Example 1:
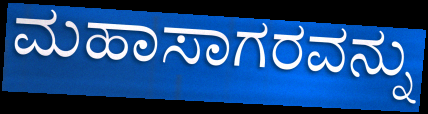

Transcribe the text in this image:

ಮಹಾಸಾಗರವನ್ನು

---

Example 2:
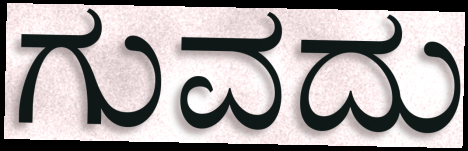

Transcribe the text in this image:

ಗುವದು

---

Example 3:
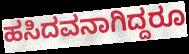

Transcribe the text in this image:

ಹಸಿದವನಾಗಿದ್ದರೂ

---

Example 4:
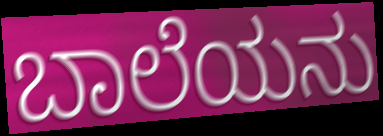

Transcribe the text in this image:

ಬಾಲೆಯನು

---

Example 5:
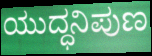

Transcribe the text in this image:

ಯುದ್ಧನಿಪುಣ